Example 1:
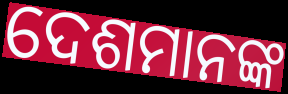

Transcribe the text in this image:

ଦେଶମାନଙ୍କ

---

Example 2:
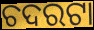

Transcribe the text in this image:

ଚଦରଟା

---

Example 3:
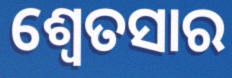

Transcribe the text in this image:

ଶ୍ଵେତସାର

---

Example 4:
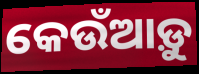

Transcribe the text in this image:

କେଉଁଆଡ଼ୁ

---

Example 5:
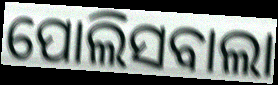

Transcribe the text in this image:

ପୋଲିସବାଲା